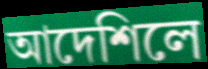
আদেশিলে